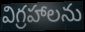
విగ్రహాలను